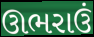
ઊભરાઉં